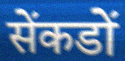
सेंकडों